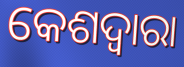
କେଶଦ୍ବାରା